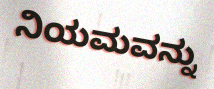
ನಿಯಮವನ್ನು